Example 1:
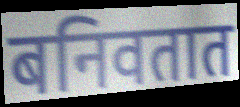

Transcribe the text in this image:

बनिवतात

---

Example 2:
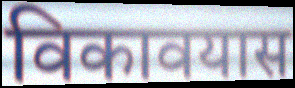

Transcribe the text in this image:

विकावयास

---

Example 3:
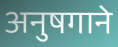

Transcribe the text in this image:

अनुषगाने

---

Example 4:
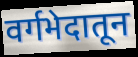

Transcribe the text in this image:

वर्गभेदातून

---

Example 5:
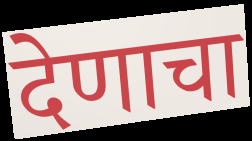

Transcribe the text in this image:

देणाचा